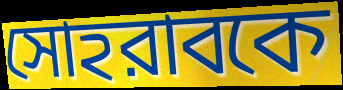
সোহরাবকে